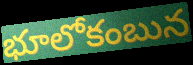
భూలోకంబున